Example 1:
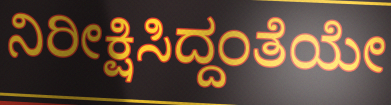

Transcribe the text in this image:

ನಿರೀಕ್ಷಿಸಿದ್ದಂತೆಯೇ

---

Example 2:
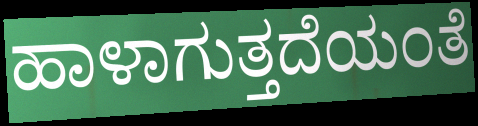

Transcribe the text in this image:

ಹಾಳಾಗುತ್ತದೆಯಂತೆ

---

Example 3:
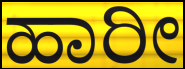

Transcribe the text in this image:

ಹಾರೀ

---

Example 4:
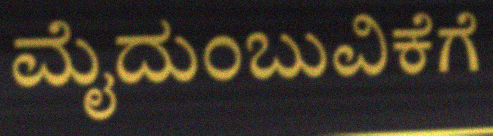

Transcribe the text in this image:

ಮೈದುಂಬುವಿಕೆಗೆ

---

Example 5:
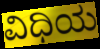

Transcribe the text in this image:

ವಿಧಿಯ